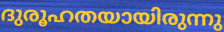
ദുരൂഹതയായിരുന്നു